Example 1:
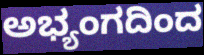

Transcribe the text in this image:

ಅಭ್ಯಂಗದಿಂದ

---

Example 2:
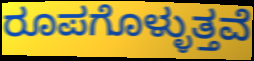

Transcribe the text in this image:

ರೂಪಗೊಳ್ಳುತ್ತವೆ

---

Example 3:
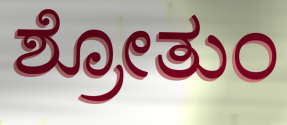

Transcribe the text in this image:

ಶ್ರೋತುಂ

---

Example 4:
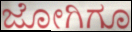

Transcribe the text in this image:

ಜೋಗಿಗೂ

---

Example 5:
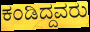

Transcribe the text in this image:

ಕಂಡಿದ್ದವರು